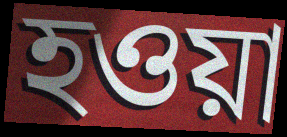
হওয়া